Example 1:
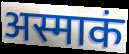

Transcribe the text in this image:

अस्माकं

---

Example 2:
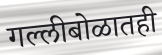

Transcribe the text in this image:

गल्लीबोळातही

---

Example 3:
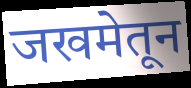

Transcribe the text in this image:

जखमेतून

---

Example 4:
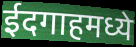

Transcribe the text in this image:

ईदगाहमध्ये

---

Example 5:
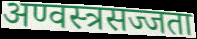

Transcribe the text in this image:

अण्वस्त्रसज्जता